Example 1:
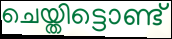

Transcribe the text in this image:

ചെയ്തിട്ടൊണ്ട്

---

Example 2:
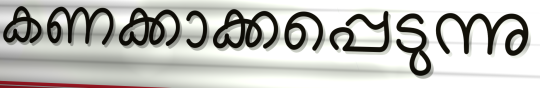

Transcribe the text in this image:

കണക്കാക്കപ്പെടുന്നു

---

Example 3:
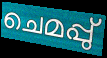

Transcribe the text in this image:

ചെമപ്പു്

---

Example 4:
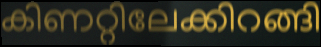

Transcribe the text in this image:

കിണറ്റിലേക്കിറങ്ങി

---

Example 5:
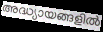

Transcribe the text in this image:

അദ്ധ്യായങ്ങളിൽ